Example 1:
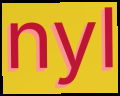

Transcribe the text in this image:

nyl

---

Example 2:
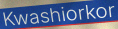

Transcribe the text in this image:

Kwashiorkor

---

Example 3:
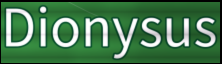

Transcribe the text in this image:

Dionysus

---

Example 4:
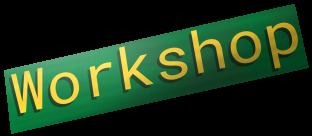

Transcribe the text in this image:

Workshop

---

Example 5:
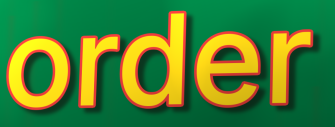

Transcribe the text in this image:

order